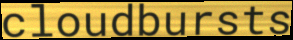
cloudbursts